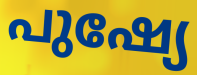
പുഷ്യേ